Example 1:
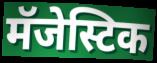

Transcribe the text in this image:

मॅजेस्टिक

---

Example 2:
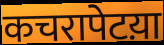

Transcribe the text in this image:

कचरापेटय़ा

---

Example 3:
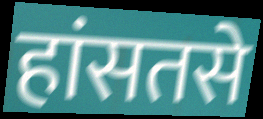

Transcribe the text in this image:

हांसतसे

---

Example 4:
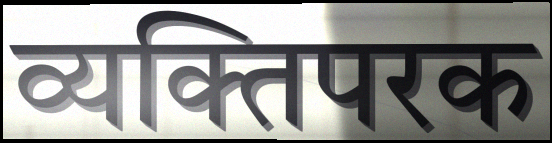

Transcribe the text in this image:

व्यक्तिपरक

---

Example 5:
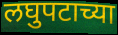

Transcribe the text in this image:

लघुपटाच्या